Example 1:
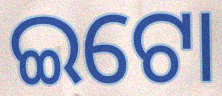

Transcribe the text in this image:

ଇଟୋ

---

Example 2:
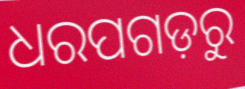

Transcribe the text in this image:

ଧରପଗଡ଼ରୁ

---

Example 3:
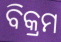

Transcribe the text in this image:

ବିକ୍ରମ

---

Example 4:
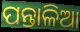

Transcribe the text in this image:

ପନ୍ତାଳିଆ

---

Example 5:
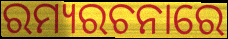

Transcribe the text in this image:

ରମ୍ୟରଚନାରେ